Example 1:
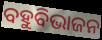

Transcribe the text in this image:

ବହୁବିଭାଜନ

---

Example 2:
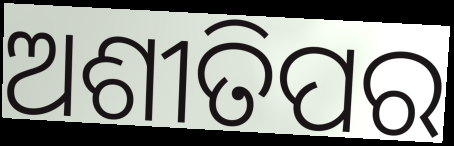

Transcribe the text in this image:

ଅଶୀତିପର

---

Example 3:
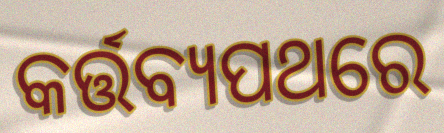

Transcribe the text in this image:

କର୍ତ୍ତବ୍ୟପଥରେ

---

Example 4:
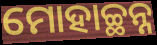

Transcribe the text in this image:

ମୋହାଚ୍ଛନ୍ନ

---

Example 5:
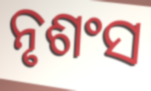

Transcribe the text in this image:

ନୃଶଂସ